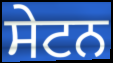
ਸੇਟਨ